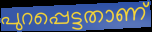
പുറപ്പെട്ടതാണ്